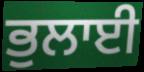
ਭੁਲਾਈ